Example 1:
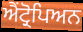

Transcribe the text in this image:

ਐਂਟ੍ਰੋਪਿਅਨ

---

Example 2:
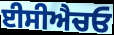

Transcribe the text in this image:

ਈਸੀਐਚਓ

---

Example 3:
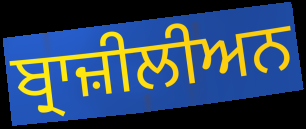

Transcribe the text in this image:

ਬ੍ਰਾਜ਼ੀਲੀਅਨ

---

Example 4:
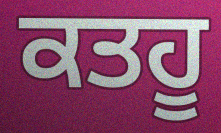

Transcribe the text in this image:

ਕਤਹੂ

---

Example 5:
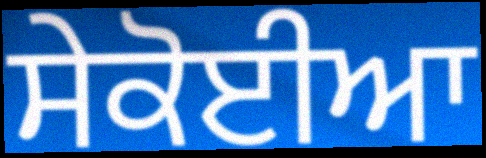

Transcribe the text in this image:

ਸੇਕੋਈਆ